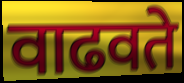
वाढवते